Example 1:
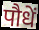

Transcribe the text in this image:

पौधें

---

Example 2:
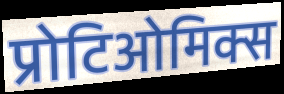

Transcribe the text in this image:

प्रोटिओमिक्स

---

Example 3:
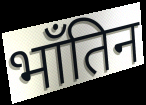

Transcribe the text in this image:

भाँतिन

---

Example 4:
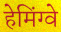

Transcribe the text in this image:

हेमिंग्वे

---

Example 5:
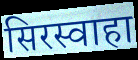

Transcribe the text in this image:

सिरस्वाहा